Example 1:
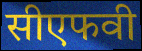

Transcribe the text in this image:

सीएफवी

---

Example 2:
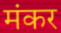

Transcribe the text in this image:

मंकर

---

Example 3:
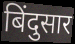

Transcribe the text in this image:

बिंदुसार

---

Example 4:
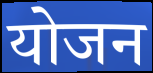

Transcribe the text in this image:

योजन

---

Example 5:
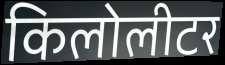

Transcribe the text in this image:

किलोलीटर